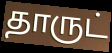
தாருட்